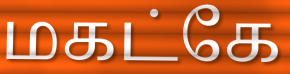
மகட்கே